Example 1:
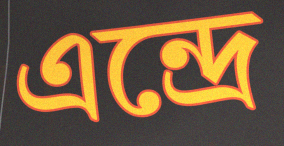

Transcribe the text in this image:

এন্দ্ৰে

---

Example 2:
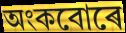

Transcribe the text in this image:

অংকবোৰে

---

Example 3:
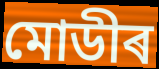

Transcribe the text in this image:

মোডীৰ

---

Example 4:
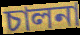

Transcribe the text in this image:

চালনা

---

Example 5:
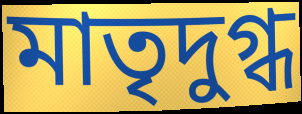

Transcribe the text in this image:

মাতৃদুগ্ধ